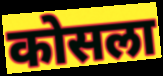
कोसला